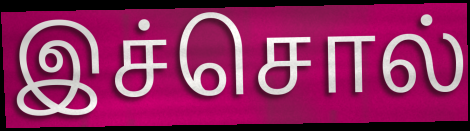
இச்சொல்